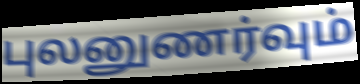
புலனுணர்வும்